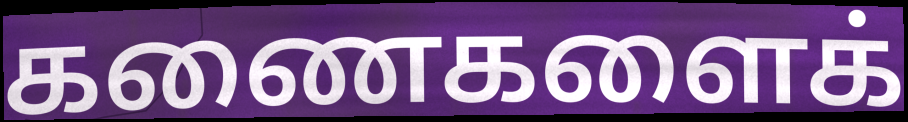
கணைகளைக்